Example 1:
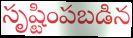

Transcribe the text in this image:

సృష్టింపబడిన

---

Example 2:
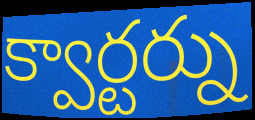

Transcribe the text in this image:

క్వార్టర్ను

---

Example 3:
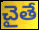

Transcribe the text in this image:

చైతే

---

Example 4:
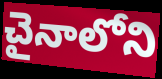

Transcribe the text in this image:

చైనాలోని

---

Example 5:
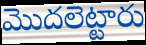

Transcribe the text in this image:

మొదలెట్టారు